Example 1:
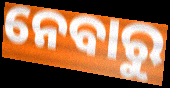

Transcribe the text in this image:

ନେବାରୁ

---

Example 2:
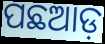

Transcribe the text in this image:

ପଛଆଡ଼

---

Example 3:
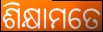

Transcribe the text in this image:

ଶିକ୍ଷାମତେ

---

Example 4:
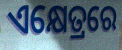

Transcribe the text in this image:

ଏକ୍ଷେତ୍ରରେ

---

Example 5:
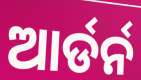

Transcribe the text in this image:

ଆର୍ଡର୍ନ